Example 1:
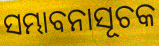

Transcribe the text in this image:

ସମ୍ଭାବନାସୂଚକ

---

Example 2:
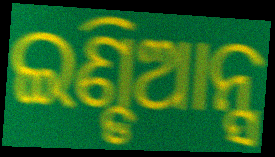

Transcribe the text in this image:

ଇଣ୍ଡିଆନ୍ସ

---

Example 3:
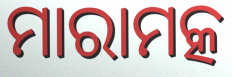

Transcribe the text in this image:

ମାରାମତ୍କ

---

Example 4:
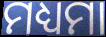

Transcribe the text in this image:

ମଧ୍ୟମା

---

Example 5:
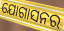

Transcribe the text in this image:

ଯୋଗାସନର